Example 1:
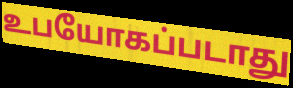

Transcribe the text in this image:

உபயோகப்படாது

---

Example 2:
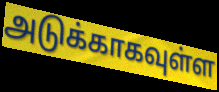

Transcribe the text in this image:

அடுக்காகவுள்ள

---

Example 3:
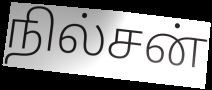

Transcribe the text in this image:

நில்சன்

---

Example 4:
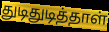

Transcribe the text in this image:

துடிதுடித்தாள்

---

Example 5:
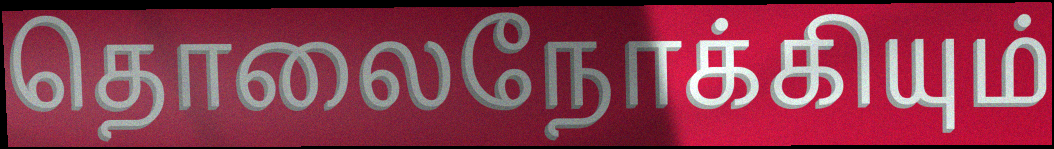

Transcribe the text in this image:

தொலைநோக்கியும்